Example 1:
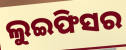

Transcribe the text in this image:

ଲୁଇଫିସର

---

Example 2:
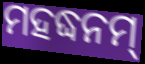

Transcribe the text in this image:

ମହଦ୍ଧନମ୍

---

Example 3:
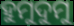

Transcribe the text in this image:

ହୁମୁଦୁମୁ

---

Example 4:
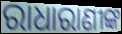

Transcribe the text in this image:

ରାଧାରାଣୀଙ୍କ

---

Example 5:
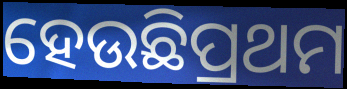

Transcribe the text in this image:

ହେଉଛିପ୍ରଥମ